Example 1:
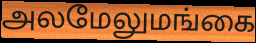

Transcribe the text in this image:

அலமேலுமங்கை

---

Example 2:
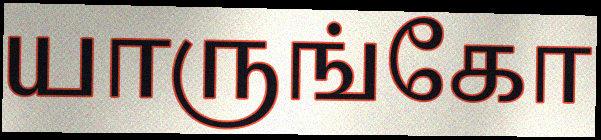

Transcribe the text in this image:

யாருங்கோ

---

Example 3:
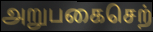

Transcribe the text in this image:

அறுபகைசெற்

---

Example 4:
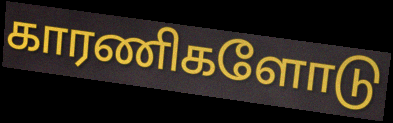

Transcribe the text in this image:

காரணிகளோடு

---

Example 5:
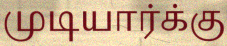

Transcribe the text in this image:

முடியார்க்கு